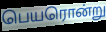
பெயரொன்று